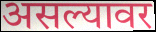
असल्यावर